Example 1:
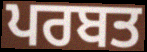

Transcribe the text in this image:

ਪਰਬਤ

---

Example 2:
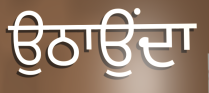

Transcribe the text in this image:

ਉਠਾਉਂਦਾ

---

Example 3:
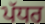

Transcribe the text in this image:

ਪੱਧਰ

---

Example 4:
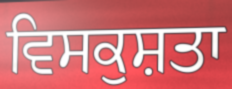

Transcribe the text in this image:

ਵਿਸਕੁਸ਼ਤਾ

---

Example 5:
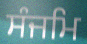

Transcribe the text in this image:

ਸੰਜਮਿ